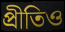
প্রীতিও